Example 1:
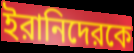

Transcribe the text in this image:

ইরানিদেরকে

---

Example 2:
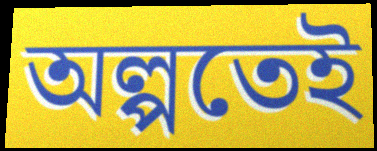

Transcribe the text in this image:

অল্পতেই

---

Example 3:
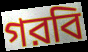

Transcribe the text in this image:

গরবি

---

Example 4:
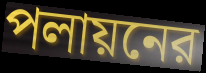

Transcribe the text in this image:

পলায়নের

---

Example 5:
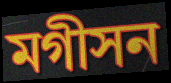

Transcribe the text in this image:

মগীসন